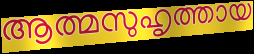
ആത്മസുഹൃത്തായ